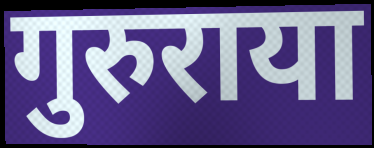
गुरुराया